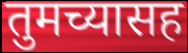
तुमच्यासह